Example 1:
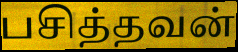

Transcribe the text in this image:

பசித்தவன்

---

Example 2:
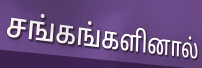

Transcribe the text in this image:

சங்கங்களினால்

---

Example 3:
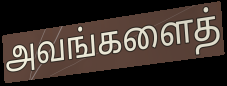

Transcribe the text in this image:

அவங்களைத்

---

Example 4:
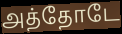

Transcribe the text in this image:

அத்தோடே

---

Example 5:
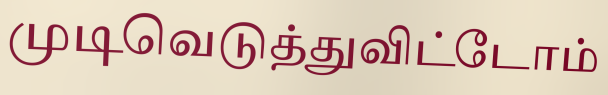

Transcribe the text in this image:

முடிவெடுத்துவிட்டோம்